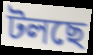
টলছে